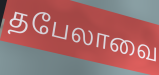
தபேலாவை